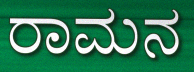
ರಾಮನ